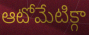
ఆటోమేటిక్గా